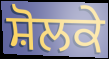
ਸ਼ੋਲਕੇ